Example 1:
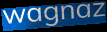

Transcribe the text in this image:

wagnaz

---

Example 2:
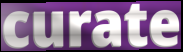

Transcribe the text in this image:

curate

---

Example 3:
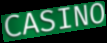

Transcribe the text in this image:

CASINO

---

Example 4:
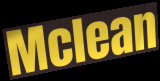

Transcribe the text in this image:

Mclean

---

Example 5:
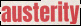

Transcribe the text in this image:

austerity